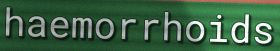
haemorrhoids